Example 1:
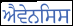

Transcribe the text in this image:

ਐਵੇਨਸਿਸ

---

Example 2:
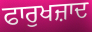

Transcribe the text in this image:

ਫਾਰੁਖਜ਼ਾਦ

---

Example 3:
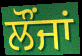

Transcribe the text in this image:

ਲੌਂਜਾਂ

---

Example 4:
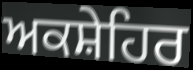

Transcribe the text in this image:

ਅਕਸ਼ੇਹਿਰ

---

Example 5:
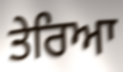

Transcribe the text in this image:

ਤੇਰਿਆ